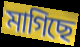
মাগিছে